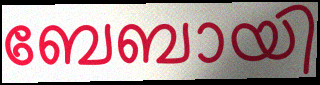
ബേബായി